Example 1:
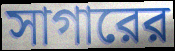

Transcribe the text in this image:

সাগারের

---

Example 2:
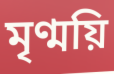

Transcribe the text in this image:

মৃণ্ময়ি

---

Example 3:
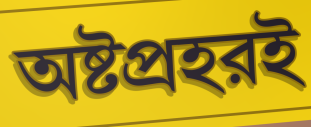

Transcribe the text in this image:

অষ্টপ্রহরই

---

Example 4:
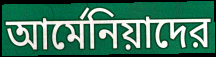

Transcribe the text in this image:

আর্মেনিয়াদের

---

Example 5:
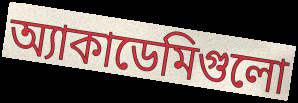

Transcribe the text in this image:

অ্যাকাডেমিগুলো